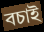
বচাই